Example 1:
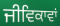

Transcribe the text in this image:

ਜੀਵਿਕਾਵਾਂ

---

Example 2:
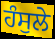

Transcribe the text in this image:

ਹੰਸੁਲੇ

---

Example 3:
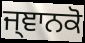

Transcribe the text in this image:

ਜ੍ਞਾਨਕੋ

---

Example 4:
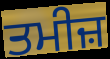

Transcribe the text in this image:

ਤਮੀਜ਼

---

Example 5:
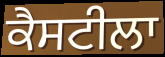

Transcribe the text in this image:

ਕੈਸਟੀਲਾ